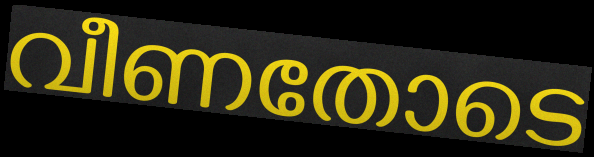
വീണതോടെ